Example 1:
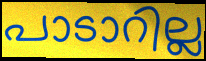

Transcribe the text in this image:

പാടാറില്ല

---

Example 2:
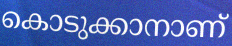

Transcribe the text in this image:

കൊടുക്കാനാണ്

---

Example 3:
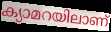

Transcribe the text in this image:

ക്യാമറയിലാണ്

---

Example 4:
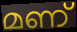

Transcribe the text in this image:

മണ്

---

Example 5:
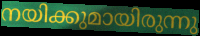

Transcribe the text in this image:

നയിക്കുമായിരുന്നു